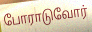
போராடுவோர்